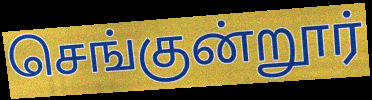
செங்குன்றூர்